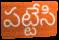
పట్టేసి